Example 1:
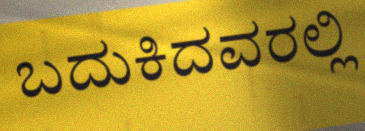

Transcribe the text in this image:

ಬದುಕಿದವರಲ್ಲಿ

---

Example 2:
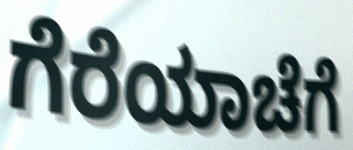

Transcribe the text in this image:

ಗೆರೆಯಾಚೆಗೆ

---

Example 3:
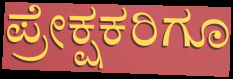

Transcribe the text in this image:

ಪ್ರೇಕ್ಷಕರಿಗೂ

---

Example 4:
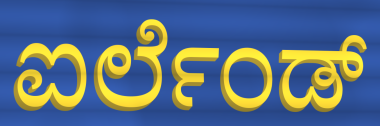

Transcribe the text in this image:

ಐರ್ಲೆಂಡ್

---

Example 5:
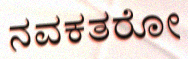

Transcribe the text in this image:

ನವಕತರೋ